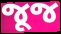
જૂજ